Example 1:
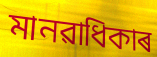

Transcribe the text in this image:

মানৱাধিকাৰ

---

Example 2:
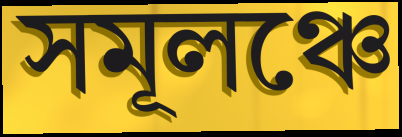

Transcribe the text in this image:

সমূলঞ্চে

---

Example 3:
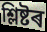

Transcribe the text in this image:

শ্লিষ্টৰ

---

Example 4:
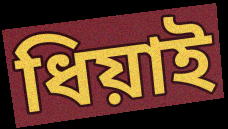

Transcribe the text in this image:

ধিয়াই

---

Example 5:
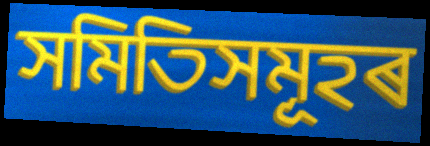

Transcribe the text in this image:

সমিতিসমূহৰ